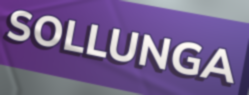
SOLLUNGA